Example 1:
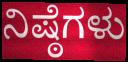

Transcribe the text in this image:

ನಿಷ್ಠೆಗಳು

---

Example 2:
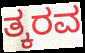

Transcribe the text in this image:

ತ್ಕರವ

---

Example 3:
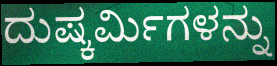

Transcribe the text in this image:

ದುಷ್ಕರ್ಮಿಗಳನ್ನು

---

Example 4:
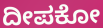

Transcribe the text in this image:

ದೀಪಕೋ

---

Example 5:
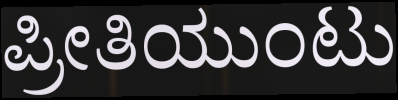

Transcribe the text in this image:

ಪ್ರೀತಿಯುಂಟು